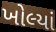
ખોલ્યાં